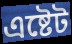
এষ্টেট